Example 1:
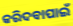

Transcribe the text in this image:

କରିଦବାପାଇଁ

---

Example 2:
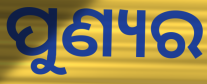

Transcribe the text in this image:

ପୁଣ୍ୟର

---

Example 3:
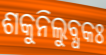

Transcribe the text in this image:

ଶକୁନିଲୁବ୍ଧକଃ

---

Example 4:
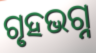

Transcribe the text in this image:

ଗୃହଭଗ୍ନ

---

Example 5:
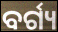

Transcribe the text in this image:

ବର୍ଗ୍ୟ